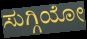
ಸುಗ್ಗಿಯೋ